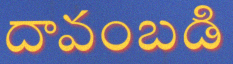
దావంబడి